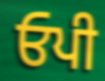
ਓਪੀ